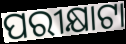
ପରୀକ୍ଷାଟା